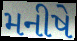
મનીષે